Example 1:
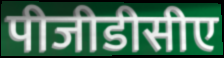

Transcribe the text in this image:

पीजीडीसीए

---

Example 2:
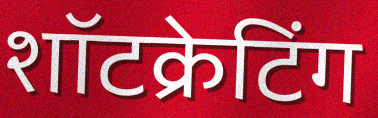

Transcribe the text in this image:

शॉटक्रेटिंग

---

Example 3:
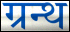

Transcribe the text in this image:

ग्रन्थ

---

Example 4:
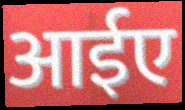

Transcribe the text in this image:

आईए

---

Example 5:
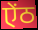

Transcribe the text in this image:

ऐंठ